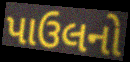
પાઉલનો